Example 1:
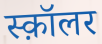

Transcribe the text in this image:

स्क़ॉलर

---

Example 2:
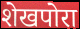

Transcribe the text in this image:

शेखपोरा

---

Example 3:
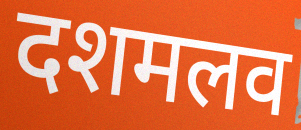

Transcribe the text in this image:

दशमलव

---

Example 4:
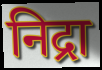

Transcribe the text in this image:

निद्रा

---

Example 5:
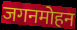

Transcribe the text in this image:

जगनमोहन